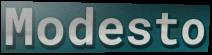
Modesto